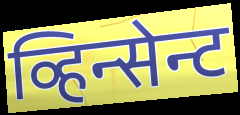
व्हिन्सेन्ट